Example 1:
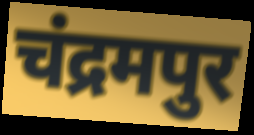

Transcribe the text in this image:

चंद्रमपुर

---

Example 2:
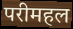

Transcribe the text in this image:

परीमहल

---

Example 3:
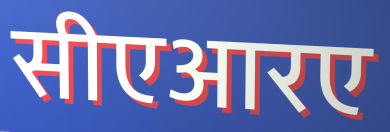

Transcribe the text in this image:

सीएआरए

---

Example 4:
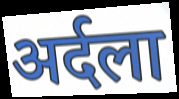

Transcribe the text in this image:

अर्दला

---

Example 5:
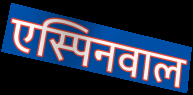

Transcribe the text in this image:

एस्पिनवाल